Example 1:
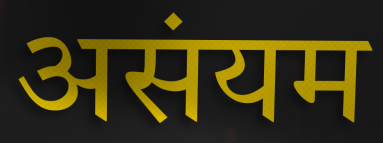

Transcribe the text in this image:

असंयम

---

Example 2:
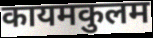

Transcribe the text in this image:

कायमकुलम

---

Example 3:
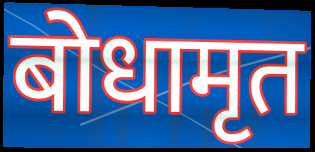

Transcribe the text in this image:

बोधामृत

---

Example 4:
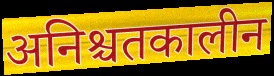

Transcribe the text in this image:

अनिश्चतकालीन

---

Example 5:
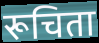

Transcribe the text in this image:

रूचिता